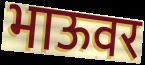
भाऊवर